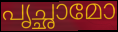
പൃച്ഛാമോ